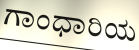
ಗಾಂಧಾರಿಯ